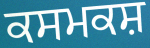
ਕਸਮਕਸ਼